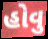
હોવુ